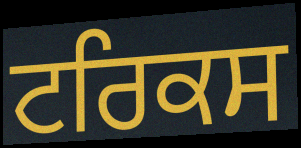
ਟਰਿਕਸ